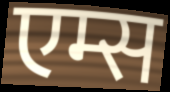
एम्‍स